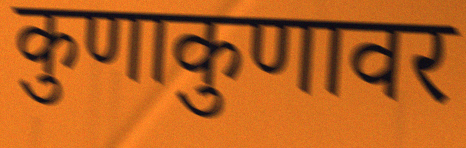
कुणाकुणावर